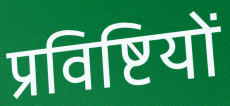
प्रविष्टियों